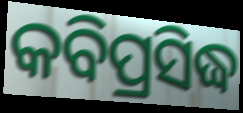
କବିପ୍ରସିଦ୍ଧ